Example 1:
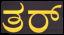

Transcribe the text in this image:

ತರ್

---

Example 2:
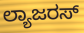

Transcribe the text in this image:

ಲ್ಯಾಜರಸ್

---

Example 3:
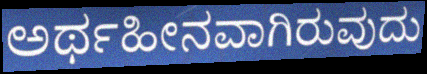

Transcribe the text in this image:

ಅರ್ಥಹೀನವಾಗಿರುವುದು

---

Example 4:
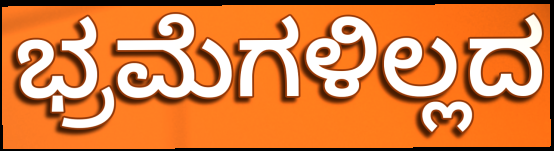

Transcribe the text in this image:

ಭ್ರಮೆಗಳಿಲ್ಲದ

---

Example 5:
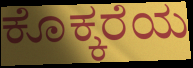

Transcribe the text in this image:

ಕೊಕ್ಕರೆಯ